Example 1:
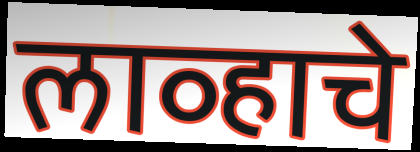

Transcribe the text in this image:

लाव्हाचे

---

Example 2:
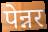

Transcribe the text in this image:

पेन्नर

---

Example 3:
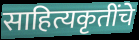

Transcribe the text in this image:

साहित्यकृतींचे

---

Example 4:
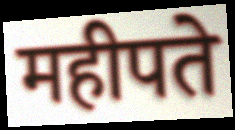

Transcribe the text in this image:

महीपते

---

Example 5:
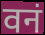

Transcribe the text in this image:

वनं